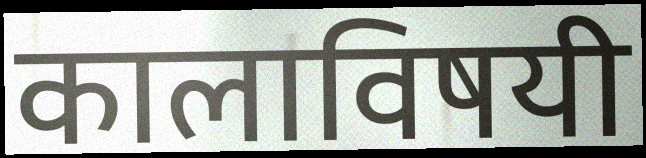
कालाविषयी